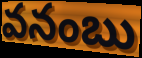
వనంబు